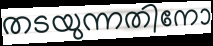
തടയുന്നതിനോ